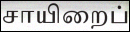
சாயிறைப்